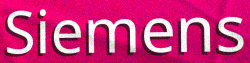
Siemens